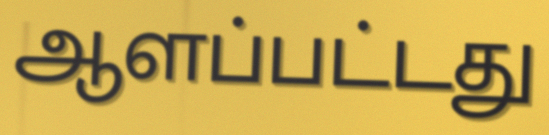
ஆளப்பட்டது